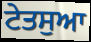
ਟੇਤਸੁਆ